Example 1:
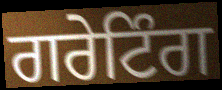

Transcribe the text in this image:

ਗਰੇਟਿੰਗ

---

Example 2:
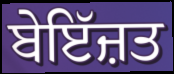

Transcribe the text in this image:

ਬੇਇੱਜ਼ਤ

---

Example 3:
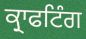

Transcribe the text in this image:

ਕ੍ਰਾਫਟਿੰਗ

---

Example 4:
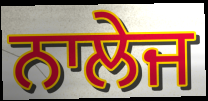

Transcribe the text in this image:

ਨਾਲੇਜ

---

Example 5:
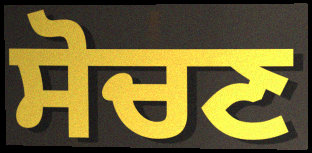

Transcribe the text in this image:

ਸੋਚਣ